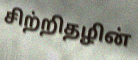
சிற்றிதழின்